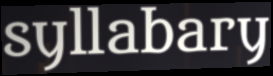
syllabary